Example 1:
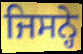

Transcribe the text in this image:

ਜਿਸਨ੍ਹੇ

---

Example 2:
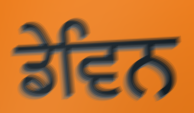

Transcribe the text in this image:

ਡੇਵਿਨ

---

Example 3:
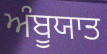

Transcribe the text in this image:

ਅੰਬੂਯਾਤ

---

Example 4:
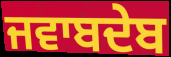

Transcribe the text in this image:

ਜਵਾਬਦੇਬ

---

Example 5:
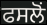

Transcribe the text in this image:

ਫਸਲੋਂ